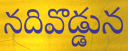
నదివొడ్డున